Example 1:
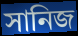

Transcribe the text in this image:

সানিজ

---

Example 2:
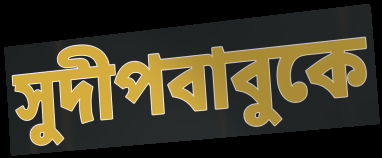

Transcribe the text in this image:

সুদীপবাবুকে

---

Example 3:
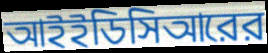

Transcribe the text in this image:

আইইডিসিআরের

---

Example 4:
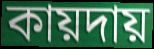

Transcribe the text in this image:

কায়দায়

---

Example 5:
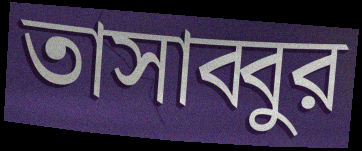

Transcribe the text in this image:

তাসাব্বুর